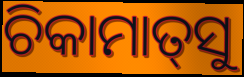
ଚିକାମାତ୍‌ସୁ